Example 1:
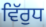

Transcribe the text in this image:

ਵਿੱਰੁਧ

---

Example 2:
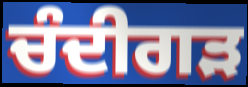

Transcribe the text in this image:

ਚੰਦੀਗੜ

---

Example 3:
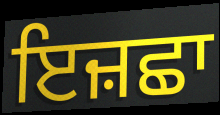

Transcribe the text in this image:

ਇਜ਼ਛਾ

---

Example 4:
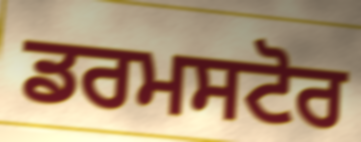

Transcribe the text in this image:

ਡਰਮਸਟੋਰ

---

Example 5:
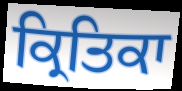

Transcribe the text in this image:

ਕ੍ਰਿਤਿਕਾ